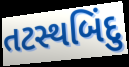
તટસ્થબિંદુ